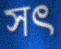
সৎ